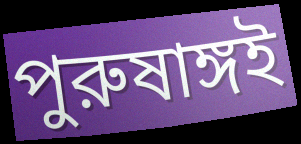
পুরুষাঙ্গই